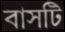
বাসটি